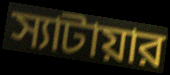
স্যাটায়ার